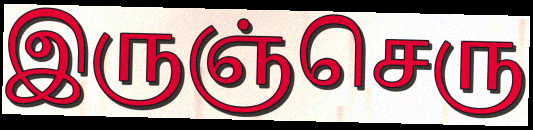
இருஞ்செரு